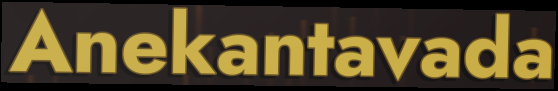
Anekantavada